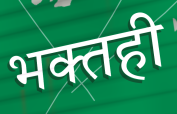
भक्तही